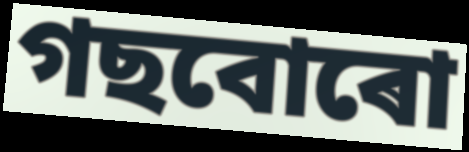
গছবোৰো